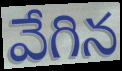
వేగిన